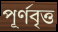
পূর্ণবৃত্ত